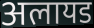
अलायड